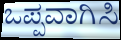
ಒಪ್ಪವಾಗಿಸಿ